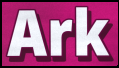
Ark